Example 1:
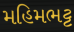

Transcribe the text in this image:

મહિમભટ્ટ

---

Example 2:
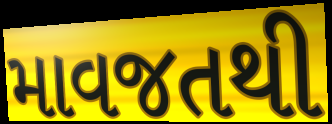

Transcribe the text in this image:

માવજતથી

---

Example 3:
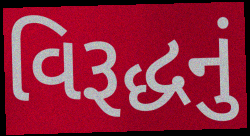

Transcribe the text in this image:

વિરૂદ્ધનું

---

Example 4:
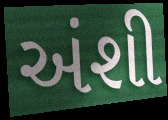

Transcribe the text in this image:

અંશી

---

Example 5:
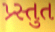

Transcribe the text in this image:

પ્ર્સ્તુત